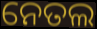
ନେତଲ